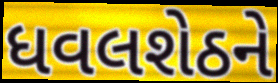
ધવલશેઠને